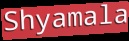
Shyamala